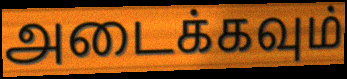
அடைக்கவும்